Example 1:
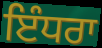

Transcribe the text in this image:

ਇੰਧਰਾ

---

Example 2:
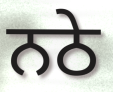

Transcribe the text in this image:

ਨਠੇ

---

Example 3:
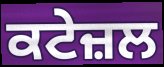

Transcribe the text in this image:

ਕਟੇਜ਼ਲ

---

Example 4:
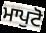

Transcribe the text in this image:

ਮਾਪੁਟੋ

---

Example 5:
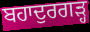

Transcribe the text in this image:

ਬਹਾਦੁਰਗੜ੍ਹ